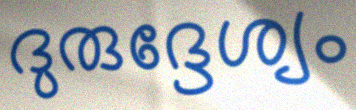
ദുരുദ്ദേശ്യം